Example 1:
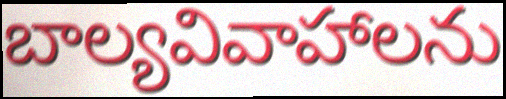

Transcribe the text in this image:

బాల్యవివాహాలను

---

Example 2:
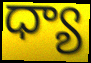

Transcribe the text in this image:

ధ్యా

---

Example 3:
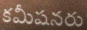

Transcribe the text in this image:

కమీషనరు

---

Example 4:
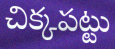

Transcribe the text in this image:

చిక్కపట్టు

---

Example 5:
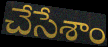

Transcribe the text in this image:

చేసేశాం